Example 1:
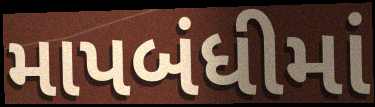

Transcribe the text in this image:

માપબંધીમાં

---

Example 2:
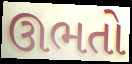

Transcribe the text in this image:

ઊભતો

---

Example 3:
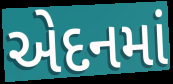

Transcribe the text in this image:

એદનમાં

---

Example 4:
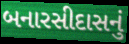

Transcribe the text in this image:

બનારસીદાસનું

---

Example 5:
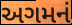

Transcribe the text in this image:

અગમનં